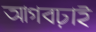
আগবঢ়াই